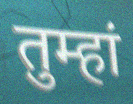
तुम्हां